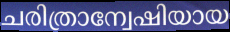
ചരിത്രാന്വേഷിയായ